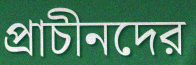
প্রাচীনদের